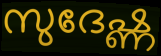
സുദേഷ്ണ